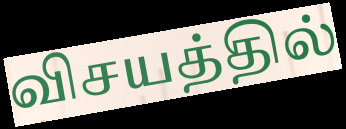
விசயத்தில்